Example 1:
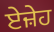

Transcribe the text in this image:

ਏਜ਼ੇਹ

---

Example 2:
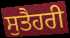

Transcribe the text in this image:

ਸੁਤੈਹਰੀ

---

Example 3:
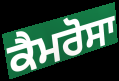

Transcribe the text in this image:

ਕੈਮਰੋਸਾ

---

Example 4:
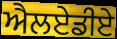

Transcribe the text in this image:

ਐਲਏਡੀਏ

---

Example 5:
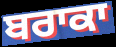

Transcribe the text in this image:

ਬਰਾਕਾ